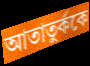
আতাতুর্ককে